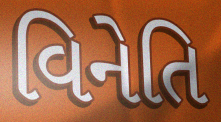
વિનેતિ